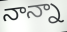
నాన్నా